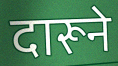
दारूने